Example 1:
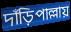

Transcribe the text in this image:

দাঁড়িপাল্লায়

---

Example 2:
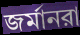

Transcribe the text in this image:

জর্মানরা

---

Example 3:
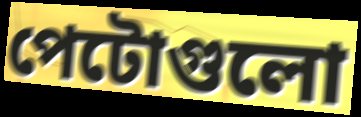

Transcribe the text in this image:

পেটোগুলো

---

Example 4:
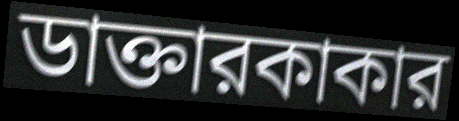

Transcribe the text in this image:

ডাক্তারকাকার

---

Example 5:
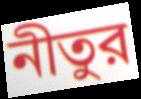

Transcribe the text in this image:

নীতুর